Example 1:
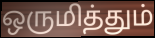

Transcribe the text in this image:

ஒருமித்தும்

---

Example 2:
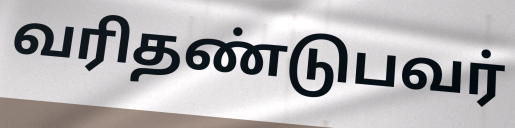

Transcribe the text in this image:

வரிதண்டுபவர்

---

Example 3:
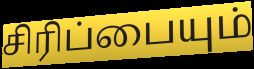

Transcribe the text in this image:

சிரிப்பையும்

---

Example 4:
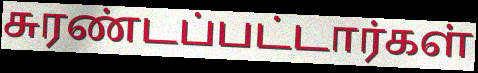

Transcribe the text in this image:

சுரண்டப்பட்டார்கள்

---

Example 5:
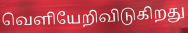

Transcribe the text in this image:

வெளியேறிவிடுகிறது